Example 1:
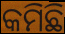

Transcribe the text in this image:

କମିଛି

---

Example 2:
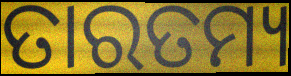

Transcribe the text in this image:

ତାରତମ୍ୟ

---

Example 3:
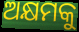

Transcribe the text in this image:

ଅକ୍ଷମକୁ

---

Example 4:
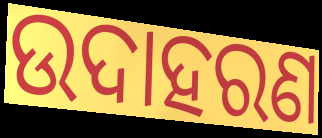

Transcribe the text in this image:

ଉଦାହରଣ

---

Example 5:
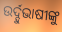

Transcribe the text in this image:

ଉର୍ଦ୍ଦୁଭାଷୀଙ୍କୁ